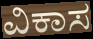
ವಿಕಾಸ